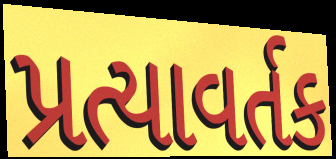
પ્રત્યાવર્તક